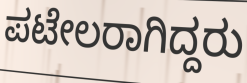
ಪಟೇಲರಾಗಿದ್ದರು